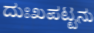
ದುಃಖಪಟ್ಟನು